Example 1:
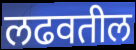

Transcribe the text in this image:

लढवतील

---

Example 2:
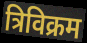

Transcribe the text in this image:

त्रिविक्रम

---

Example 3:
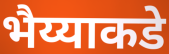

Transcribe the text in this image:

भैय्याकडे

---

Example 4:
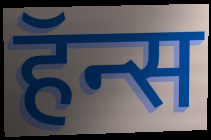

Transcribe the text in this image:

हॅन्स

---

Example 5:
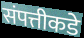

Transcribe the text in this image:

संपत्तीकडे